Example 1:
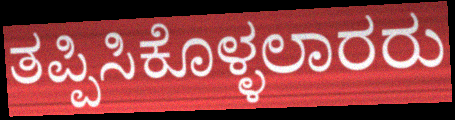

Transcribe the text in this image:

ತಪ್ಪಿಸಿಕೊಳ್ಳಲಾರರು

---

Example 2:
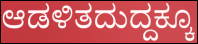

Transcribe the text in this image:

ಆಡಳಿತದುದ್ದಕ್ಕೂ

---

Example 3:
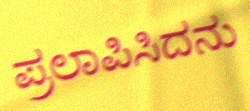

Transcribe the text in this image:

ಪ್ರಲಾಪಿಸಿದನು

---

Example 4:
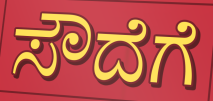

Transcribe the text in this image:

ಸೌದೆಗೆ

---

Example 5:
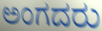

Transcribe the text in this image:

ಅಂಗದರು